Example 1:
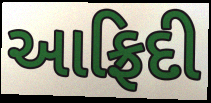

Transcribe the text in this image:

આફ્રિદી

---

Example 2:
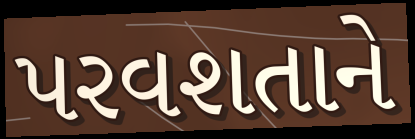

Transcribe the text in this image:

પરવશતાને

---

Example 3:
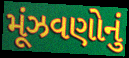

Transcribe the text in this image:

મૂંઝવણોનું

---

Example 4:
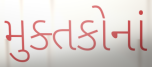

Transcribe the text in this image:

મુક્તકોનાં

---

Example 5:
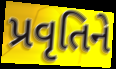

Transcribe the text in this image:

પ્રવૃતિને